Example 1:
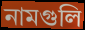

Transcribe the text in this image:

নামগুলি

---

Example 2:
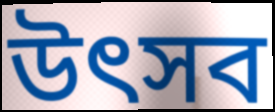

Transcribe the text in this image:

উত্‍সব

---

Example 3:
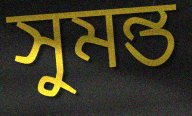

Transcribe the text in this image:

সুমন্ত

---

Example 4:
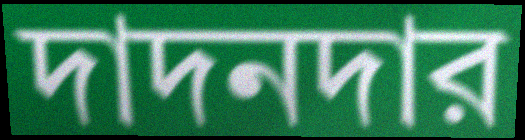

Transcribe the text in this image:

দাদনদার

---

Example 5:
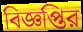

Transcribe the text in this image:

বিজ্ঞপ্তির